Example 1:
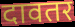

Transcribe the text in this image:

दावतर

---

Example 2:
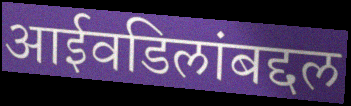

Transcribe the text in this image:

आईवडिलांबद्दल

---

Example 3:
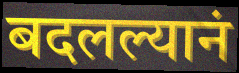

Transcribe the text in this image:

बदलल्यानं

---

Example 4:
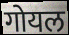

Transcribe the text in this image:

गोयल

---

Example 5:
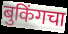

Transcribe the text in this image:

बुकिंगचा